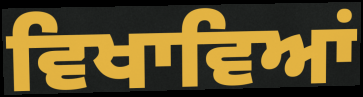
ਵਿਖਾਵਿਆਂ